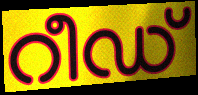
റീഡ്